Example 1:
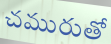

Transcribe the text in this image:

చమురుతో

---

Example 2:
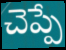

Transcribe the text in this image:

చెప్పే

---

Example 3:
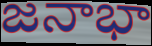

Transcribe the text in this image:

జనాభా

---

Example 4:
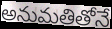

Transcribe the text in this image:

అనుమతితోనే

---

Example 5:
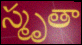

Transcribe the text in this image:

స్మృతా